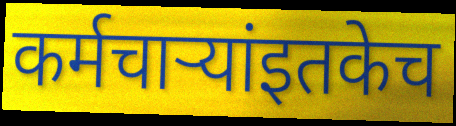
कर्मचाऱ्यांइतकेच